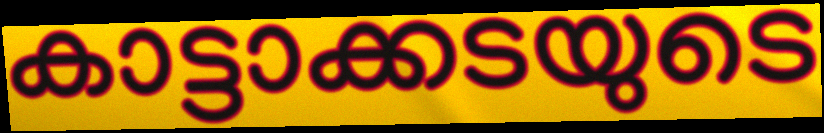
കാട്ടാക്കടയുടെ